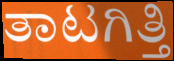
ತಾಟಗಿತ್ತಿ